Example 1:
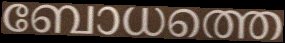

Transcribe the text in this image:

ബോധത്തെ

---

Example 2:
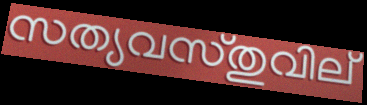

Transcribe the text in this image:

സത്യവസ്തുവില്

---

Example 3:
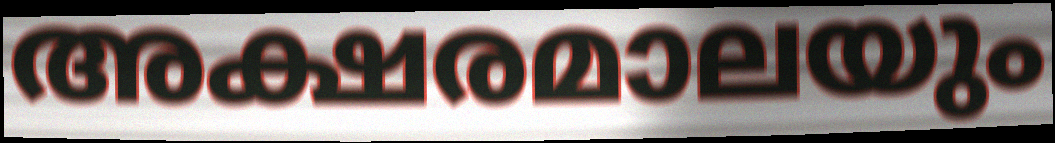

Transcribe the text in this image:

അക്ഷരമാലയും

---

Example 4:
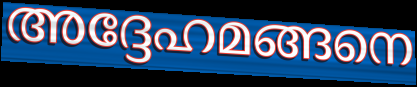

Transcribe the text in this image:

അദ്ദേഹമങ്ങനെ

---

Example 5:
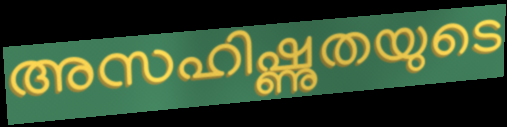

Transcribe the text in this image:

അസഹിഷ്ണുതയുടെ